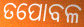
ତପୋବଳ